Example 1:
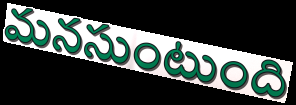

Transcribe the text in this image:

మనసుంటుంది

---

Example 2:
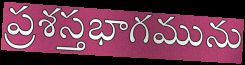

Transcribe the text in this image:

ప్రశస్తభాగమును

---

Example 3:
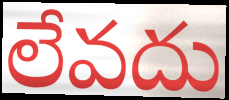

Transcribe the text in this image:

లేవదు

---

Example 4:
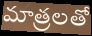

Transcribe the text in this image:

మాత్రలతో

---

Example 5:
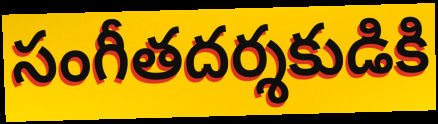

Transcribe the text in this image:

సంగీతదర్శకుడికి